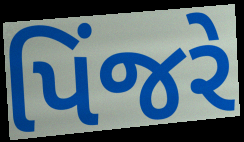
પિંજરે